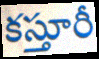
కస్తూరీ